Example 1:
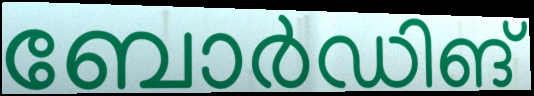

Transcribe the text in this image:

ബോർഡിങ്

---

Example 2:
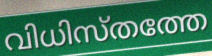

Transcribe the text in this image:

വിധിസ്തത്തേ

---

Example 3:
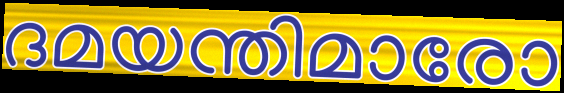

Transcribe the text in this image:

ദമയന്തിമാരോ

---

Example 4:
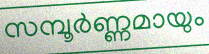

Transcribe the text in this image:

സമ്പൂർണ്ണമായും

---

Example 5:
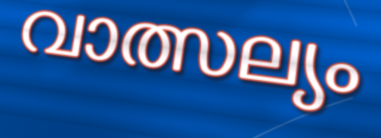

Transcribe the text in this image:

വാത്സല്യം